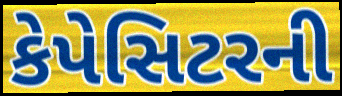
કેપેસિટરની